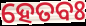
ହେତବଃ